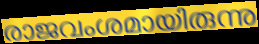
രാജവംശമായിരുന്നു